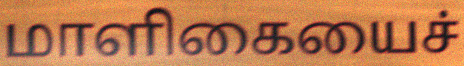
மாளிகையைச்